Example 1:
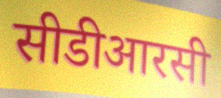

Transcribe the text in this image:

सीडीआरसी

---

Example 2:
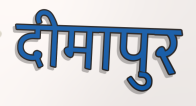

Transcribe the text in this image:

दीमापुर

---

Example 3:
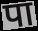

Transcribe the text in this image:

पा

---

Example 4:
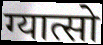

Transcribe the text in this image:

ग्यात्सो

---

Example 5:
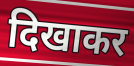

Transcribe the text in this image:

दिखाकर